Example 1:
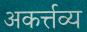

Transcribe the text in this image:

अकर्त्तव्य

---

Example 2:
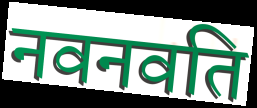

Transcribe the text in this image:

नवनवति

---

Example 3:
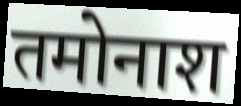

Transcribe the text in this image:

तमोनाश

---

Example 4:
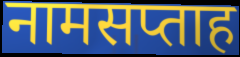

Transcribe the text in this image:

नामसप्ताह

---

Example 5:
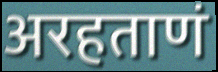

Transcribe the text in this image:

अरहताणं